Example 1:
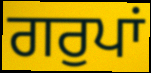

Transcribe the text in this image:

ਗਰੁਪਾਂ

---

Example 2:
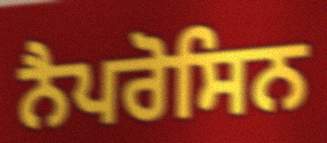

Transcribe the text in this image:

ਨੈਪਰੋਸਿਨ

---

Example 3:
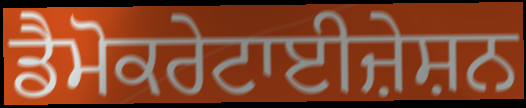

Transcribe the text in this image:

ਡੈਮੋਕਰੇਟਾਈਜ਼ੇਸ਼ਨ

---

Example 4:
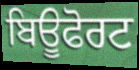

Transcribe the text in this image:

ਬਿਊਫੋਰਟ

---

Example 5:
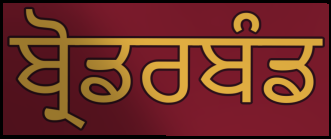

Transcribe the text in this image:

ਬ੍ਰੋਡਰਬੰਡ